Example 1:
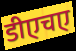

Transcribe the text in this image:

डीएचए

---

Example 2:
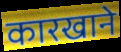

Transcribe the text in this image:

कारखाने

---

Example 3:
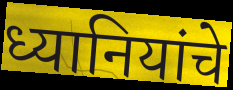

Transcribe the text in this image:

ध्यानियांचे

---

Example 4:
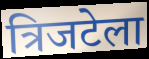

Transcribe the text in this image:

त्रिजटेला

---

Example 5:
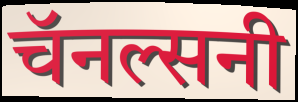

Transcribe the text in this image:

चॅनल्सनी